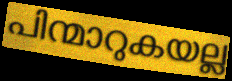
പിന്മാറുകയല്ല